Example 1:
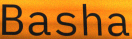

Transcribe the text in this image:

Basha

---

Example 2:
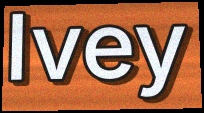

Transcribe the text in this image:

Ivey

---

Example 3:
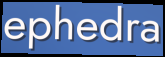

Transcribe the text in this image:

ephedra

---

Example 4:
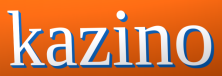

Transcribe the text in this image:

kazino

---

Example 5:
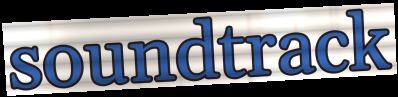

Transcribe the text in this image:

soundtrack